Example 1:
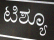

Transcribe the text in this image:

ಟಿಶ್ಯೂ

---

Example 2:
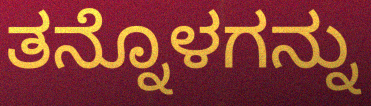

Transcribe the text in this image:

ತನ್ನೊಳಗನ್ನು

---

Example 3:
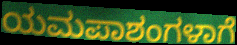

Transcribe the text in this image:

ಯಮಪಾಶಂಗಳಾಗೆ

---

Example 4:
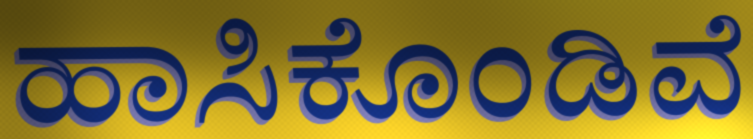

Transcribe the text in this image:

ಹಾಸಿಕೊಂಡಿವೆ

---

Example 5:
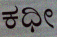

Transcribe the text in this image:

ಕಧೀ